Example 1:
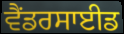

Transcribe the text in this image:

ਵੈਂਡਰਸਾਈਡ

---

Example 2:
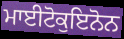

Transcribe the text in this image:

ਮਾਈਟੋਕੁਇਨੋਨ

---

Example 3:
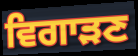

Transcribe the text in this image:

ਵਿਗਾੜਣ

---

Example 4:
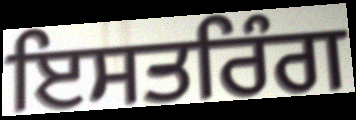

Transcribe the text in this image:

ਇਸਤਰਿੰਗ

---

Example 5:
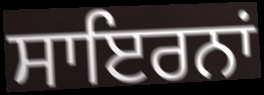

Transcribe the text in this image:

ਸਾਇਰਨਾਂ